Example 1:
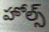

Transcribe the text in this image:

హోల్స్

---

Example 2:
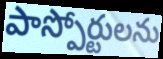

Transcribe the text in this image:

పాస్పోర్టులను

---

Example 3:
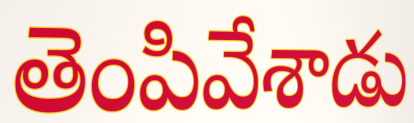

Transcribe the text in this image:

తెంపివేశాడు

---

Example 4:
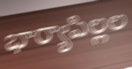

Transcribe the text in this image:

భార్యాపిల్లల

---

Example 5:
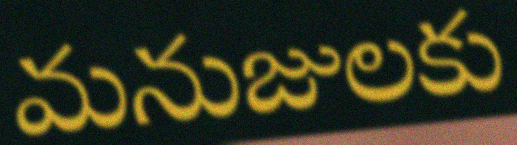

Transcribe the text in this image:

మనుజులకు